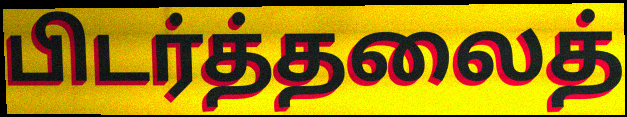
பிடர்த்தலைத்